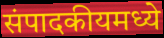
संपादकीयमध्ये